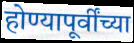
होण्यापूर्वींच्या